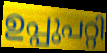
ഉപ്പുപറ്റി